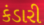
કંડારી